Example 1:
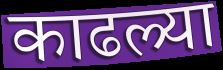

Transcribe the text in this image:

काढल्या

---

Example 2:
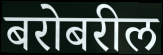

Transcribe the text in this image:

बरोबरील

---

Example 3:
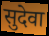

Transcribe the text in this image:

सुदेवा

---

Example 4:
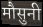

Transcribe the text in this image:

मौसुनी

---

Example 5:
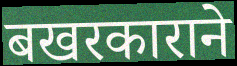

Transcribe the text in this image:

बखरकाराने